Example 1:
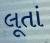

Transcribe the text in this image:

લૂતાં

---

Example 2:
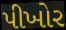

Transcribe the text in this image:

પીખોર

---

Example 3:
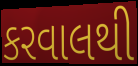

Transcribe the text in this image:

કરવાલથી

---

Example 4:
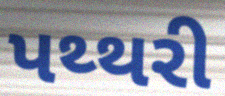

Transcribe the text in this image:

પથ્થરી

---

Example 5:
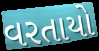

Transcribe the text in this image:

વરતાયો